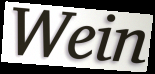
Wein